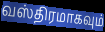
வஸ்திரமாகவும்